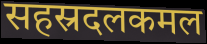
सहस्रदलकमल